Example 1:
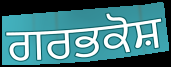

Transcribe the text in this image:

ਗਰਭਕੋਸ਼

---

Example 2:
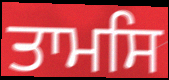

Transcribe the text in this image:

ਤਾਮਸਿ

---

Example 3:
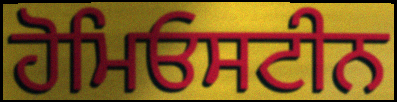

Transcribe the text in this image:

ਹੋਮਿਓਸਟੀਨ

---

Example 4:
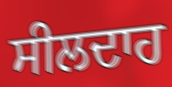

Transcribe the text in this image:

ਸੀਲਦਾਹ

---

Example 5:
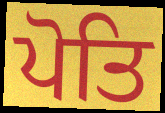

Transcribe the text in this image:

ਪੋਤਿ